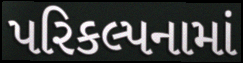
પરિકલ્પનામાં